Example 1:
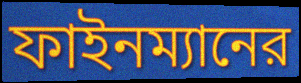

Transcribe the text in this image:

ফাইনম্যানের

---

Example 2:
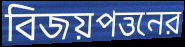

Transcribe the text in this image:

বিজয়পত্তনের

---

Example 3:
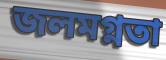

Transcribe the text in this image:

জলমগ্নতা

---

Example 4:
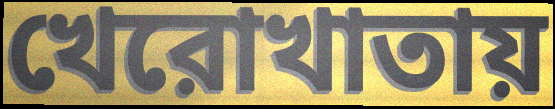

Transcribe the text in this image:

খেরোখাতায়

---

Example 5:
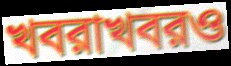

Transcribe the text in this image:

খবরাখবরও